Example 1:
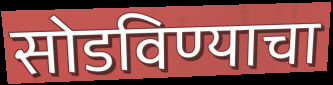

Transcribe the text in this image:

सोडविण्याचा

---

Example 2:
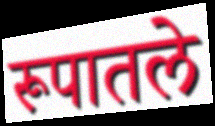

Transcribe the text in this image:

रूपातले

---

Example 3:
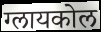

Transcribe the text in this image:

ग्लायकोल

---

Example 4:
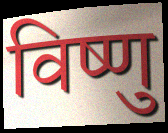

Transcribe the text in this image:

विष्णु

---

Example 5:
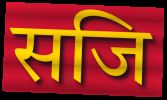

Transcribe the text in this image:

सजि